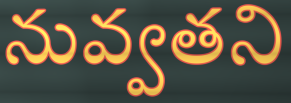
నువ్వతని